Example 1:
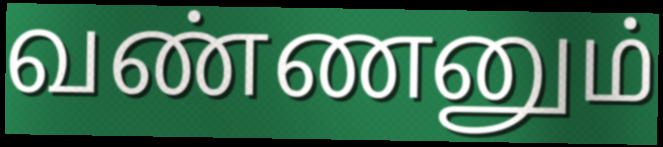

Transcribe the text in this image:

வண்ணனும்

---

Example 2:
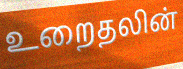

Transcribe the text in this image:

உறைதலின்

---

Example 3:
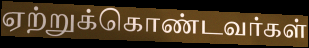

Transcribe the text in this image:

ஏற்றுக்கொண்டவர்கள்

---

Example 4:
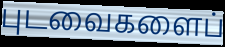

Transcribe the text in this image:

புடவைகளைப்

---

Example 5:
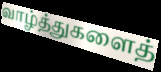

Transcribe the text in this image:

வாழ்த்துகளைத்